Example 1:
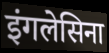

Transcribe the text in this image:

इंगलेसिना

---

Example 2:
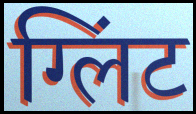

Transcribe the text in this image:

ग्लिंट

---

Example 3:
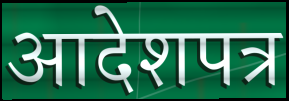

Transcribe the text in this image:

आदेशपत्र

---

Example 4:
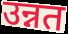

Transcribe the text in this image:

उन्नत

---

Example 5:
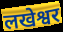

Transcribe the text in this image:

लखेश्वर